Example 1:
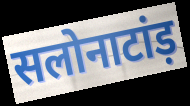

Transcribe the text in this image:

सलोनाटांड़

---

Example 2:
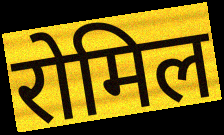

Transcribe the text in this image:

रोमिल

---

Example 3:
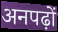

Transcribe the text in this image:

अनपढ़ों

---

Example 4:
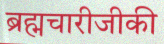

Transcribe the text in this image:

ब्रह्मचारीजीकी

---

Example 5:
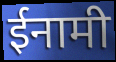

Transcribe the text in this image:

ईनामी